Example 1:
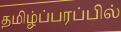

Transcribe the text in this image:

தமிழ்ப்பரப்பில்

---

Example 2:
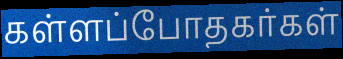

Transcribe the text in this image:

கள்ளப்போதகர்கள்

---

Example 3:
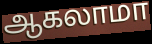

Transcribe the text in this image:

ஆகலாமா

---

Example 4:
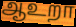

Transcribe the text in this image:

ஆஉறா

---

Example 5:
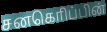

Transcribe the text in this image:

சனகெரிப்பின்